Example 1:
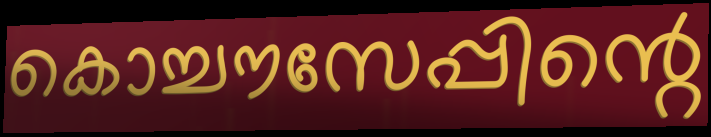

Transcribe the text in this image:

കൊച്ചൗസേപ്പിന്റെ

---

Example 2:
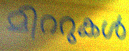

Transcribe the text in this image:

മിററുകൾ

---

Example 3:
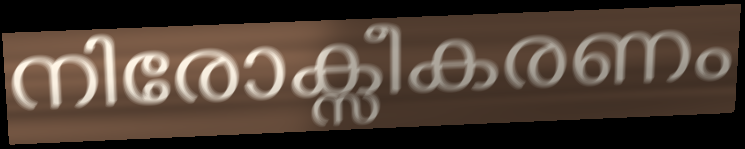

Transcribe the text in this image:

നിരോക്സീകരണം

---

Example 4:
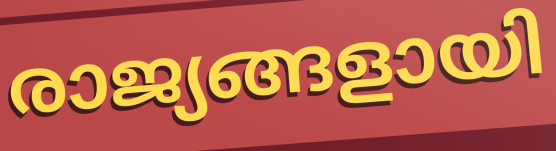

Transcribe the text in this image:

രാജ്യങ്ങളായി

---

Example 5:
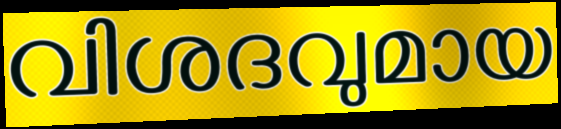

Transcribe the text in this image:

വിശദവുമായ